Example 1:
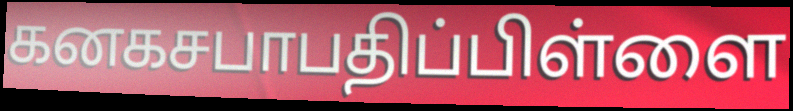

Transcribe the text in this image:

கனகசபாபதிப்பிள்ளை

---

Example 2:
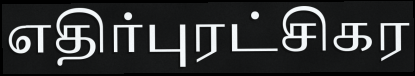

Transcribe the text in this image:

எதிர்புரட்சிகர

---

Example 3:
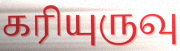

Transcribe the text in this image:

கரியுருவு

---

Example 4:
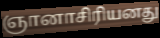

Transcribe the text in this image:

ஞானாசிரியனது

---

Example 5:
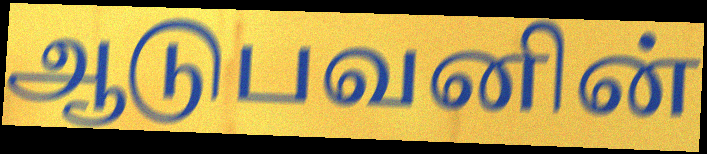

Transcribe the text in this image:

ஆடுபவனின்